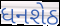
ધનશેઠ